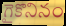
గైకొనినం